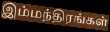
இம்மந்திரங்கள்